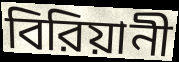
বিরিয়ানী